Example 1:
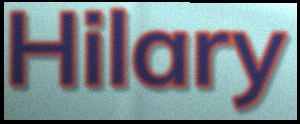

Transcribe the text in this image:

Hilary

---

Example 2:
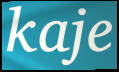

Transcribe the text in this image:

kaje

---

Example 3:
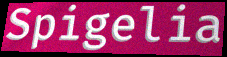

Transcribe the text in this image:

Spigelia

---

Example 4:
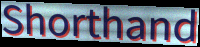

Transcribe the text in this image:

Shorthand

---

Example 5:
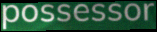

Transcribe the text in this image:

possessor